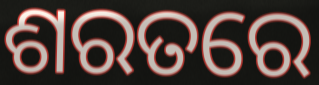
ଶରତରେ